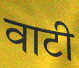
वाटी